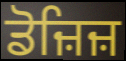
ਡੋਜ਼ਿਜ਼